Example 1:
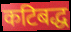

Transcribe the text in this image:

कटिबद्ध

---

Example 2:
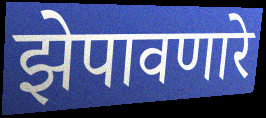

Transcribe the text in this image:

झेपावणारे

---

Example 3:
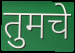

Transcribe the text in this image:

तुमचे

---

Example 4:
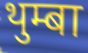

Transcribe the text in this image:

थुम्बा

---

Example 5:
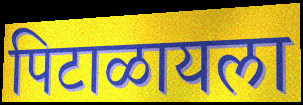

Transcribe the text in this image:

पिटाळायला